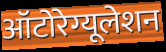
ऑटोरेग्यूलेशन